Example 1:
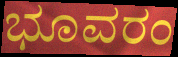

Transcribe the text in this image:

ಭೂವರಂ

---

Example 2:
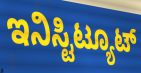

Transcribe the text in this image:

ಇನಿಸ್ಟಿಟ್ಯೂಟ್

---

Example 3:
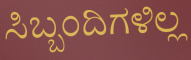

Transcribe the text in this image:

ಸಿಬ್ಬಂದಿಗಳಿಲ್ಲ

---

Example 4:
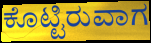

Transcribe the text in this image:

ಕೊಟ್ಟಿರುವಾಗ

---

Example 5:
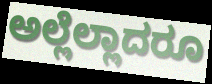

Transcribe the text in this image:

ಅಲ್ಲೆಲ್ಲಾದರೂ